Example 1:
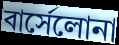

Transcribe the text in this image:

বার্সেলোনা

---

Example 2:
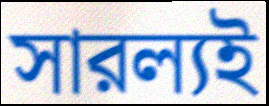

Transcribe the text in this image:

সারল্যই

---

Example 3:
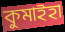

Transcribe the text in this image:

কুমাইহা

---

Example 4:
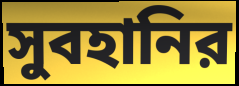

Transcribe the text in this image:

সুবহানির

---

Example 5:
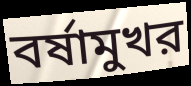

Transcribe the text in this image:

বর্ষামুখর